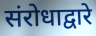
संरोधाद्वारे